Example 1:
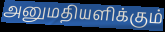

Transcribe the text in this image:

அனுமதியளிக்கும்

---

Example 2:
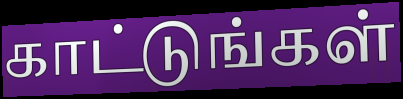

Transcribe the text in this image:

காட்டுங்கள்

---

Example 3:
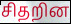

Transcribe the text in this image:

சிதறின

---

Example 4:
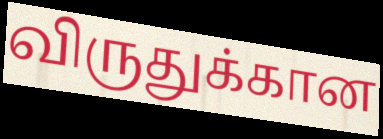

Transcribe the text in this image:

விருதுக்கான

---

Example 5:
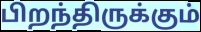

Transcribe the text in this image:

பிறந்திருக்கும்